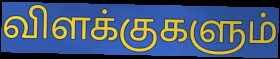
விளக்குகளும்